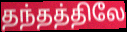
தந்தத்திலே